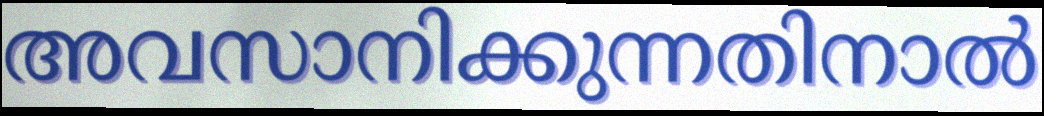
അവസാനിക്കുന്നതിനാൽ